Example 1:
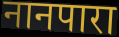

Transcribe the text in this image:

नानपारा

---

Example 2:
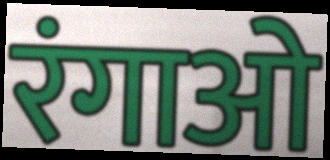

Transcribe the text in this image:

रंगाओ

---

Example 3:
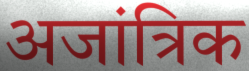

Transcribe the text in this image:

अजांत्रिक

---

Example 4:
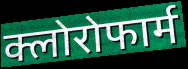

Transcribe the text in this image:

क्लोरोफार्म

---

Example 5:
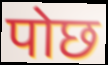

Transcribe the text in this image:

पोछ